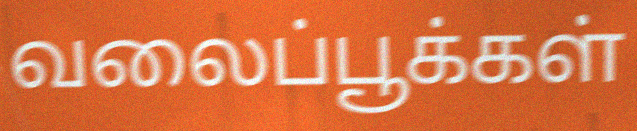
வலைப்பூக்கள்